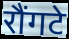
रौंगटे